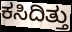
ಕಸಿದಿತ್ತು